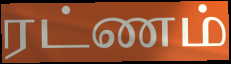
ரட்ணம்